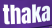
thaka